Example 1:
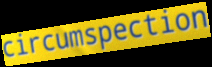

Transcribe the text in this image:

circumspection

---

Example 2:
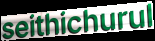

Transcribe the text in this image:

seithichurul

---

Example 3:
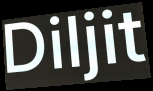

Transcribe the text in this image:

Diljit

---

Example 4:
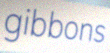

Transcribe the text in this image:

gibbons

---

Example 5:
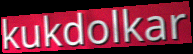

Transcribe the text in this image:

kukdolkar